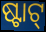
ଷ୍ଟାଟ୍